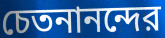
চেতনানন্দের